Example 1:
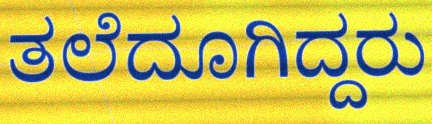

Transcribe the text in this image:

ತಲೆದೂಗಿದ್ದರು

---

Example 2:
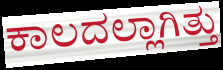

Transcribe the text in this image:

ಕಾಲದಲ್ಲಾಗಿತ್ತು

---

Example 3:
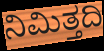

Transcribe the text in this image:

ನಿಮಿತ್ತದಿ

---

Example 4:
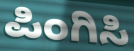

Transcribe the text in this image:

ಪಿಂಗಿಸಿ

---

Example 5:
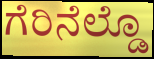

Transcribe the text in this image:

ಗೆರಿನೆಲ್ಡೊ